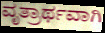
ವೃತ್ರಾರ್ಥವಾಗಿ